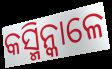
କସ୍ମିନ୍କାଳେ